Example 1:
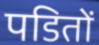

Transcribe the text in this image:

पडितों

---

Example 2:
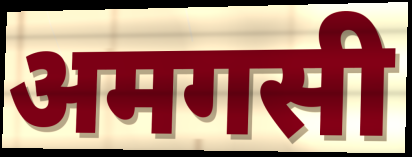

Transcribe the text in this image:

अमगसी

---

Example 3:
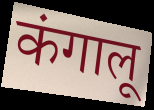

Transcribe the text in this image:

कंगालू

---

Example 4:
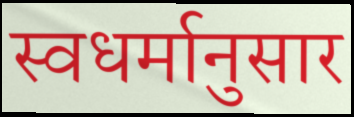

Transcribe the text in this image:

स्वधर्मानुसार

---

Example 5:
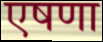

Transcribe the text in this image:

एषणा